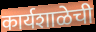
कार्यशाळेची